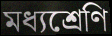
মধ্যশ্রেণি